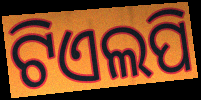
ଟିଏଲପି